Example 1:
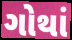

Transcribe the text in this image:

ગોથાં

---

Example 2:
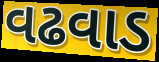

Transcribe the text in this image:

વઢવાડ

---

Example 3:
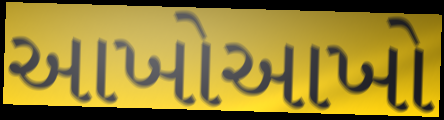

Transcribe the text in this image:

આખોઆખો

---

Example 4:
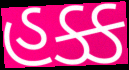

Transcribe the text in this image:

હક્ક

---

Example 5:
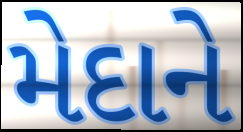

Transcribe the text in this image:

મેદાને